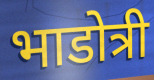
भाडोत्री